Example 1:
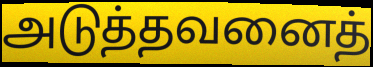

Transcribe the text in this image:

அடுத்தவனைத்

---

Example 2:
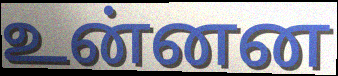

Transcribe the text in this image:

உன்னன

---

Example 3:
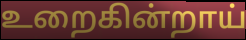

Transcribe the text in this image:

உறைகின்றாய்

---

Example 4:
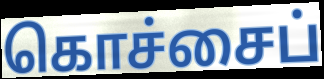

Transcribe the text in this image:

கொச்சைப்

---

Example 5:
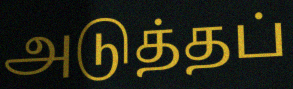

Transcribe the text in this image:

அடுத்தப்